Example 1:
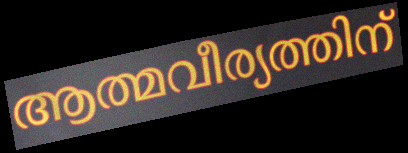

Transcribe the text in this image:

ആത്മവീര്യത്തിന്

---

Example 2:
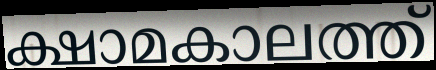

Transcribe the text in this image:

ക്ഷാമകാലത്ത്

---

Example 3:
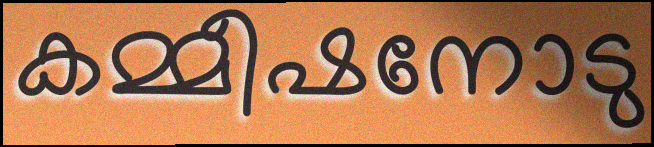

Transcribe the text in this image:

കമ്മീഷനോടു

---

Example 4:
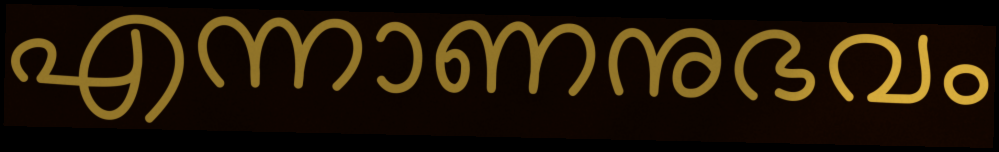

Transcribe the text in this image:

എന്നാണനുഭവം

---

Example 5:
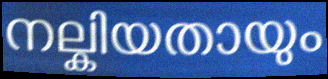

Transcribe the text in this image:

നല്കിയതായും